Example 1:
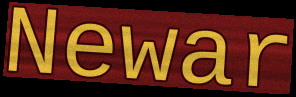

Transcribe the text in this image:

Newar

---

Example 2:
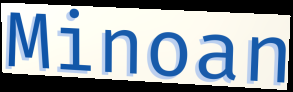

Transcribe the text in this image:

Minoan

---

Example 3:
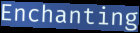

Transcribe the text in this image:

Enchanting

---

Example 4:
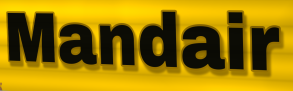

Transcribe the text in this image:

Mandair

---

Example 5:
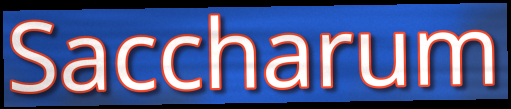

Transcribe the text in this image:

Saccharum